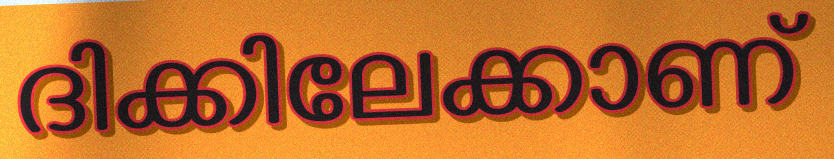
ദിക്കിലേക്കാണ്